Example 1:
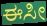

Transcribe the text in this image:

ಈಸೀ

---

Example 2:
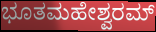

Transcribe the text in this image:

ಭೂತಮಹೇಶ್ವರಮ್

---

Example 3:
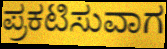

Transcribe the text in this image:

ಪ್ರಕಟಿಸುವಾಗ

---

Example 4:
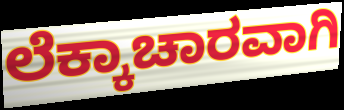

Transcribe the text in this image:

ಲೆಕ್ಕಾಚಾರವಾಗಿ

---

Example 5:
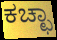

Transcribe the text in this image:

ಕಚ್ಛಾ